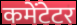
कमेंटेटर